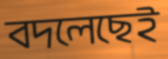
বদলেছেই